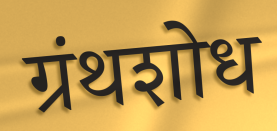
ग्रंथशोध